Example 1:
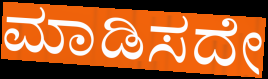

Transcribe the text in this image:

ಮಾಡಿಸದೇ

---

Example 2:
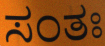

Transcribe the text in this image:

ಸಂತಃ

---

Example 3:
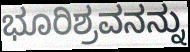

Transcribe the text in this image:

ಭೂರಿಶ್ರವನನ್ನು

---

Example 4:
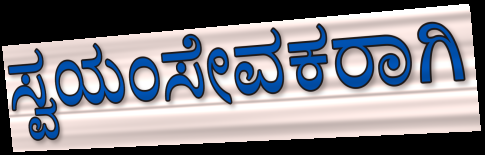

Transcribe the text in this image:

ಸ್ವಯಂಸೇವಕರಾಗಿ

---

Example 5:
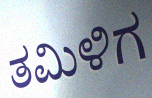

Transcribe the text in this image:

ತಮಿಳಿಗ